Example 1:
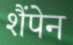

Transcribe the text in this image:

शैंपेन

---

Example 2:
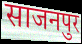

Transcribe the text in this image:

साजनपुर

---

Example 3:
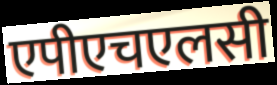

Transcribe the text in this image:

एपीएचएलसी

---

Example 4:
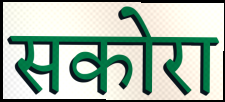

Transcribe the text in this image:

सकोरा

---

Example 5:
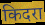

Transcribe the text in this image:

किदरा